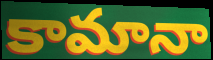
కామానా